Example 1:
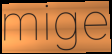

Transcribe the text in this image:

mige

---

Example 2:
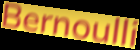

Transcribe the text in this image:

Bernoulli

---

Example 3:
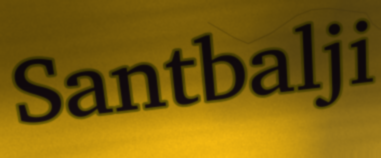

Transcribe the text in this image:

Santbalji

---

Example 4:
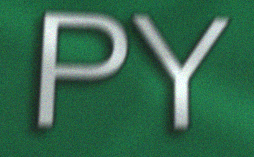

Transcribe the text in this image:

PY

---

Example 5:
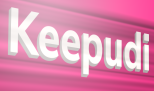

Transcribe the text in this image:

Keepudi